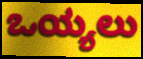
ಒಯ್ಯಲು